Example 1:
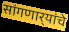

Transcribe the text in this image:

सांगणार्‍यांचे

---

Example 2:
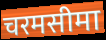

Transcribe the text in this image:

चरमसीमा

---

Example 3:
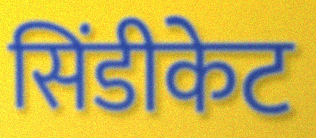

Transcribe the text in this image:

सिंडीकेट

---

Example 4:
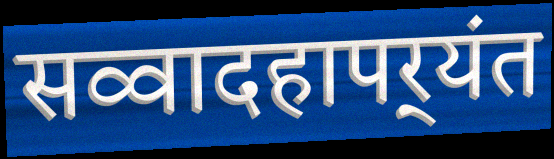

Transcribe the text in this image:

सव्वादहापर्यंत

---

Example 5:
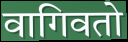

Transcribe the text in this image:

वागिवतो